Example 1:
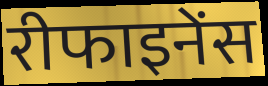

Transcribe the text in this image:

रीफाइनेंस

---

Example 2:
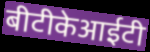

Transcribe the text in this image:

बीटीकेआईटी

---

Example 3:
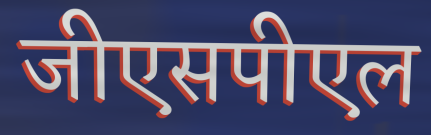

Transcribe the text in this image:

जीएसपीएल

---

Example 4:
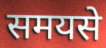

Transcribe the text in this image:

समयसे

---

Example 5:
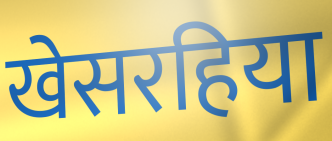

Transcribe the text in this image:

खेसरहिया